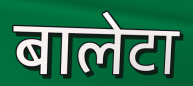
बालेटा